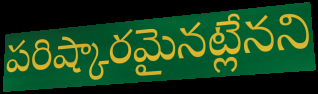
పరిష్కారమైనట్లేనని